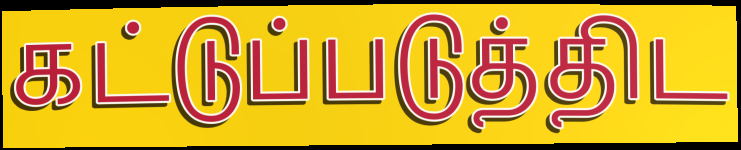
கட்டுப்படுத்திட